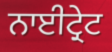
ਨਾਈਟ੍ਰੇਟ